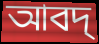
আবদ্